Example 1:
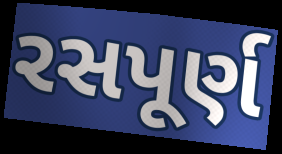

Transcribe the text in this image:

રસપૂર્ણ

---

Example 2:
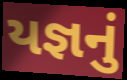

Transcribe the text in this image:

યજ્ઞનું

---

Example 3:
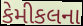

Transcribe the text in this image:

કેમીકલના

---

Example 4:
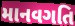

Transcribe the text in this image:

માનવગતિ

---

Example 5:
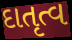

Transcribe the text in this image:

દાતૃત્વ